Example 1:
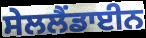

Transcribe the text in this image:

ਸੇਲਲੈਂਡਾਈਨ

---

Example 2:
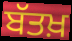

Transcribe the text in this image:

ਬੱਤਖ਼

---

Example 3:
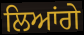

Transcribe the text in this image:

ਲਿਆਂਗੇ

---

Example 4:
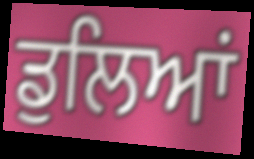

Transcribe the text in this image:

ਡੁਲਿਆਂ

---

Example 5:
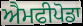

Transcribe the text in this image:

ਐਮਫੀਪੋਡਾ